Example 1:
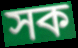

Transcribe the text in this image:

সক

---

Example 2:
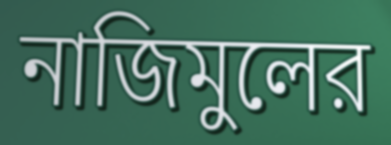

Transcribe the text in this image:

নাজিমুলের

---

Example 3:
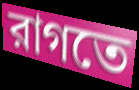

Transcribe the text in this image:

রাগতে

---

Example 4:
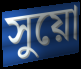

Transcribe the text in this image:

সুয়ো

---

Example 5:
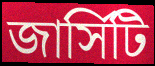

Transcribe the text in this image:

জার্সিটি